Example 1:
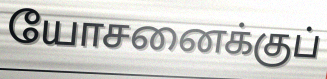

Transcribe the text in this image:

யோசனைக்குப்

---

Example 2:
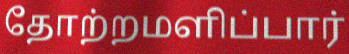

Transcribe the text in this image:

தோற்றமளிப்பார்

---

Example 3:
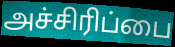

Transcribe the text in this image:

அச்சிரிப்பை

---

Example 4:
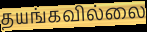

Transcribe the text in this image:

தயங்கவில்லை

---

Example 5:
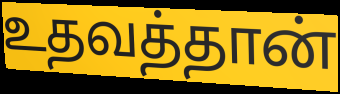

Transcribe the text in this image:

உதவத்தான்